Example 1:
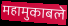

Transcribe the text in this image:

महामुकाबले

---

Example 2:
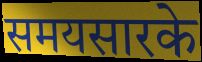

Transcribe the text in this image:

समयसारके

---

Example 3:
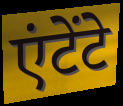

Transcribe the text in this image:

एंटेंटे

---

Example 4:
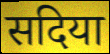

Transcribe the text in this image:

सदिया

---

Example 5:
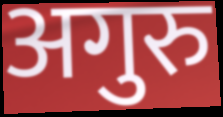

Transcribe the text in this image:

अगुरु